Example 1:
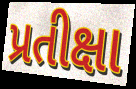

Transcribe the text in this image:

પ્રતીક્ષા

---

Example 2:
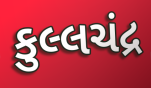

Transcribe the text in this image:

કુલ્લચંદ્ર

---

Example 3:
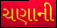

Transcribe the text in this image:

ચણાની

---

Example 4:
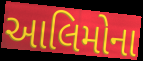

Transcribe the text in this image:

આલિમોના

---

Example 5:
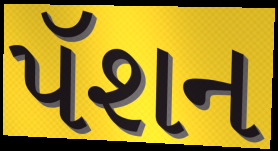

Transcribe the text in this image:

પૅશન